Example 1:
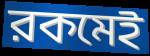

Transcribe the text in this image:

রকমেই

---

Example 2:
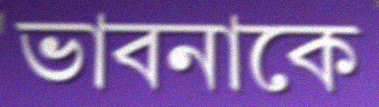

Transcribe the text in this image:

ভাবনাকে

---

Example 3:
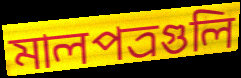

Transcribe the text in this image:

মালপত্রগুলি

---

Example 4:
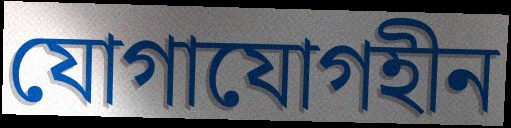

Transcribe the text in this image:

যোগাযোগহীন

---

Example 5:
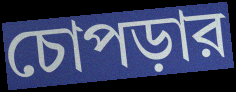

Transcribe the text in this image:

চোপড়ার